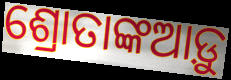
ଶ୍ରୋତାଙ୍କଆଡ଼ୁ